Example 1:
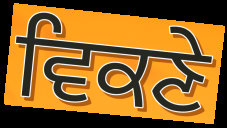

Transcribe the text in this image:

ਵਿਕਣੇ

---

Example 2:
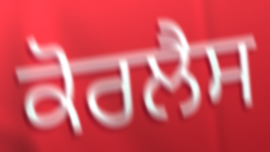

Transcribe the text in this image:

ਕੋਰਲੈਸ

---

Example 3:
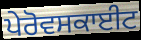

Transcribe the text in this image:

ਪੇਰੋਵਸਕਾਈਟ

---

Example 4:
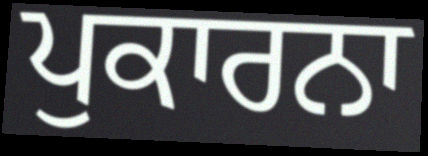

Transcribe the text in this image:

ਪੁਕਾਰਨਾ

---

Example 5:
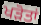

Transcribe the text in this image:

ਖੜੋਤਾਂ